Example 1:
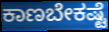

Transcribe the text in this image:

ಕಾಣಬೇಕಷ್ಟೆ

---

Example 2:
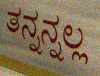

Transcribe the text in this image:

ತನ್ನನ್ನಲ್ಲ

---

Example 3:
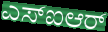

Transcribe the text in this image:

ಎಸ್ಐಆರ್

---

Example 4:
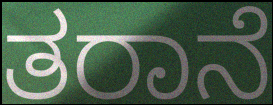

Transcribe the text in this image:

ತರಾನೆ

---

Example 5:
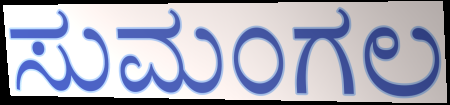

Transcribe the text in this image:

ಸುಮಂಗಲ